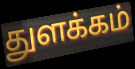
துளக்கம்